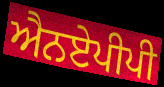
ਐਨਏਪੀਪੀ